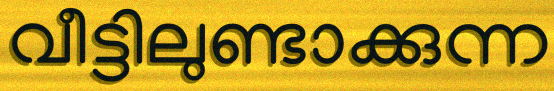
വീട്ടിലുണ്ടാക്കുന്ന